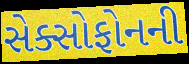
સેક્સોફોનની